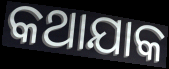
କଥାଯାକ